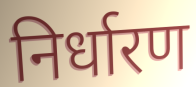
निर्धारण